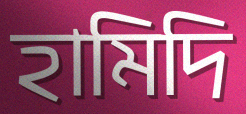
হামিদি